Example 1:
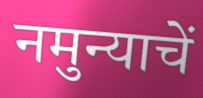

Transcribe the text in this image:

नमुन्याचें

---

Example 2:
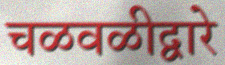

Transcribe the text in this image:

चळवळीद्वारे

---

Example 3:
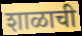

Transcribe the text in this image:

शाळाची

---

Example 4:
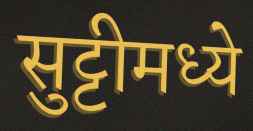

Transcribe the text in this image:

सुट्टीमध्ये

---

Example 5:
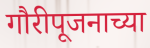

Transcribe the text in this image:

गौरीपूजनाच्या